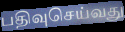
பதிவுசெய்வது